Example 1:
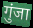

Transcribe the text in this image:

गुंजा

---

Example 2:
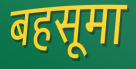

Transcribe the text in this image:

बहसूमा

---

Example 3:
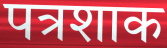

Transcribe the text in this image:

पत्रशाक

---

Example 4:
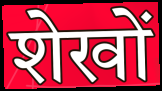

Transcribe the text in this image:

शेखों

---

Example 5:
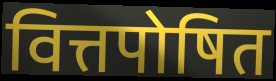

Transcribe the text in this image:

वित्तपोषित